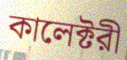
কালেক্টরী